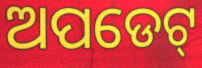
ଅପଡେଟ୍